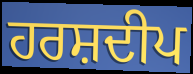
ਹਰਸ਼ਦੀਪ